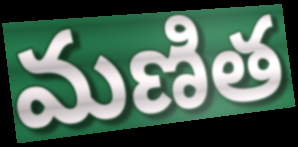
మణిత